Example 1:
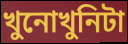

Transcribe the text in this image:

খুনোখুনিটা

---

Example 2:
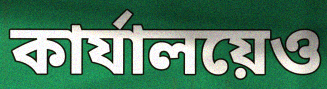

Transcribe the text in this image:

কার্যালয়েও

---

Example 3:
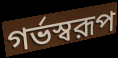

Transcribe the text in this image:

গর্ভস্বরূপ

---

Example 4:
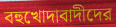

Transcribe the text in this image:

বহুখোদাবাদীদের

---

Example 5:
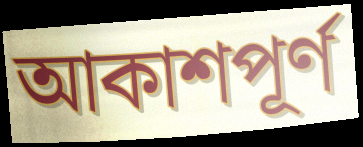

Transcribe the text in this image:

আকাশপূর্ণ